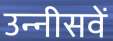
उन्नीसवें